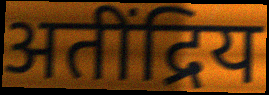
अतींद्रिय